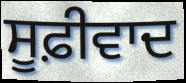
ਸੂਫ਼ੀਵਾਦ